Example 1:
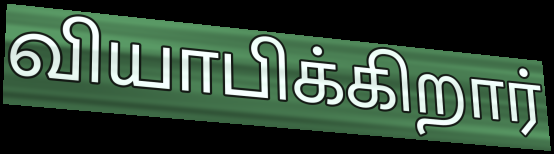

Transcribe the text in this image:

வியாபிக்கிறார்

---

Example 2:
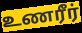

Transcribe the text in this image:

உணரீர்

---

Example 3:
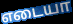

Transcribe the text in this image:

எடையா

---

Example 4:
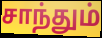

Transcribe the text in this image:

சாந்தும்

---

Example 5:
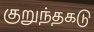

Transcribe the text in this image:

குறுந்தகடு